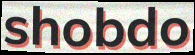
shobdo